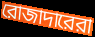
রোজাদারেরা